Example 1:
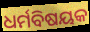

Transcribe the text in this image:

ଧର୍ମବିଷୟକ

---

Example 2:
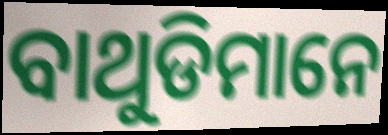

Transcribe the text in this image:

ବାଥୁଡିମାନେ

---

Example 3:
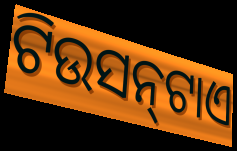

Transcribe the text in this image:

ଟିଉସନ୍‍ଟାଏ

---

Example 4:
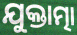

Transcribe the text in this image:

ଯୁକ୍ତାତ୍ମା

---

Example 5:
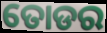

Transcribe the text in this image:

ତୋଡର